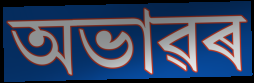
অভাৱৰ